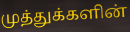
முத்துக்களின்